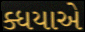
ક્ધયાએ